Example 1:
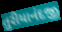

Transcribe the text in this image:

તુરીયાનંદજી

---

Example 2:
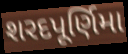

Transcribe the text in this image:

શરદપૂર્ણિમા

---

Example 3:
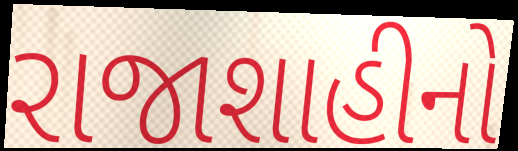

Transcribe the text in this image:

રાજાશાહીનો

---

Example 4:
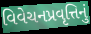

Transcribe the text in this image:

વિવેચનપ્રવૃત્તિનું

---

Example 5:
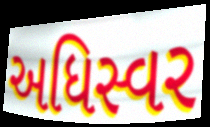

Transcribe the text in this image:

અધિસ્વર